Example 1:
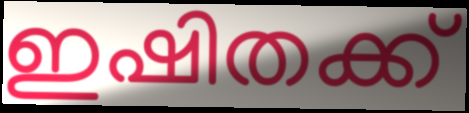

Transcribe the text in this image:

ഇഷിതക്ക്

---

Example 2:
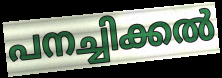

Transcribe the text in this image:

പനച്ചിക്കൽ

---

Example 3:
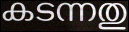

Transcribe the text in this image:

കടന്നതു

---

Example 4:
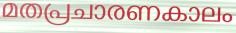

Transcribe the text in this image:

മതപ്രചാരണകാലം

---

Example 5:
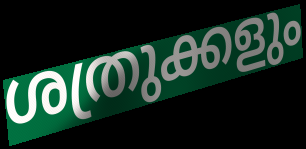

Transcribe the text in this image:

ശത്രുക്കളും